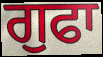
ਗੁਫਾ